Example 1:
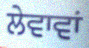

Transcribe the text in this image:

ਲੇਵਾਵਾਂ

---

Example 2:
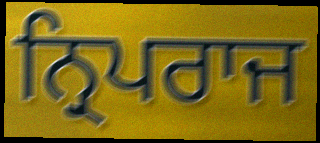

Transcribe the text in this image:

ਨ੍ਰਿਪਰਾਜ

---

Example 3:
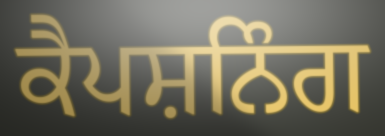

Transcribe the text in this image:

ਕੈਪਸ਼ਨਿੰਗ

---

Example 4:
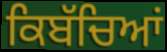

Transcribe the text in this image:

ਕਿਬੱਚਿਆਂ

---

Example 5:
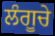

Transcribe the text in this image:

ਲੰਗੂਚੇ